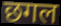
छगल